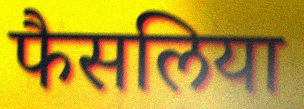
फैसलिया